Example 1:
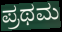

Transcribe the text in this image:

ಪ್ರಥಮ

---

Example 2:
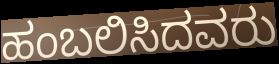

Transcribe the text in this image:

ಹಂಬಲಿಸಿದವರು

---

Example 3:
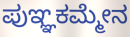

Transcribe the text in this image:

ಪುಞ್ಞಕಮ್ಮೇನ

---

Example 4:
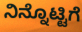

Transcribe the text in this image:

ನಿನ್ನೊಟ್ಟಿಗೆ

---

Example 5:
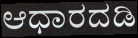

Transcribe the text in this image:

ಆಧಾರದಡಿ